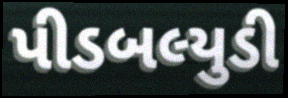
પીડબલ્યુડી